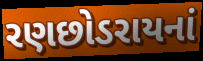
રણછોડરાયનાં